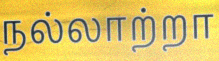
நல்லாற்றா